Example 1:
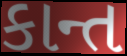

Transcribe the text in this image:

કાન્ત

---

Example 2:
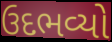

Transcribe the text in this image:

ઉદભવ્યો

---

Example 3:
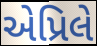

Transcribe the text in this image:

એપ્રિલે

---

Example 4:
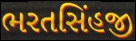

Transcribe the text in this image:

ભરતસિંહજી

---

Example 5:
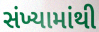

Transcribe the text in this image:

સંખ્યામાંથી